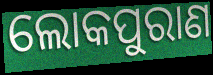
ଲୋକପୁରାଣ